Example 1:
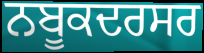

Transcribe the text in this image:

ਨਬੂਕਦਰਸਰ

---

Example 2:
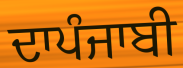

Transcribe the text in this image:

ਦਾਪੰਜਾਬੀ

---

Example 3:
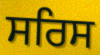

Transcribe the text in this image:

ਸਰਿਸ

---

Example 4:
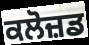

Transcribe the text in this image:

ਕਲੋਜ਼ਡ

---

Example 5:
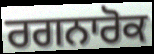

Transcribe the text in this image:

ਰਗਨਾਰੋਕ